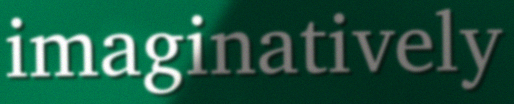
imaginatively